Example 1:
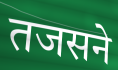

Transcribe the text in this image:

तजसने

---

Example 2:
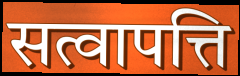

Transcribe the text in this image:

सत्वापत्ति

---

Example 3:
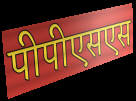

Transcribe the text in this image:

पीपीएसएस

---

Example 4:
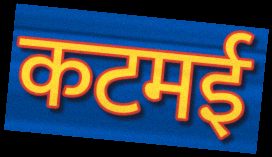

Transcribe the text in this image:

कटमई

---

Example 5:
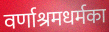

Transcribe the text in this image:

वर्णाश्रमधर्मका